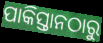
ପାକିସ୍ତାନଠାରୁ